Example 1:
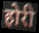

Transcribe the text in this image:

होरी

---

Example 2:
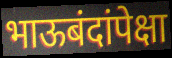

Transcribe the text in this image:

भाऊबंदांपेक्षा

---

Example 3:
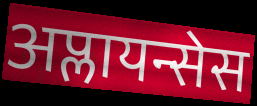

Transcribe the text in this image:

अप्लायन्सेस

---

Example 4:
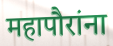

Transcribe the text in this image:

महापौरांना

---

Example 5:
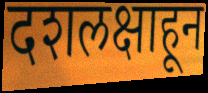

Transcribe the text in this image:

दशलक्षाहून